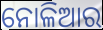
ନୋଳିଆର